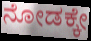
ನೋಡಕ್ಕೇ